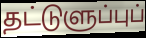
தட்டுளுப்புப்